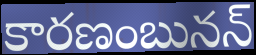
కారణంబునన్